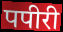
पपीरी